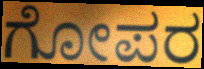
ಗೋಪರ